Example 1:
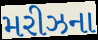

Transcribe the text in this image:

મરીઝના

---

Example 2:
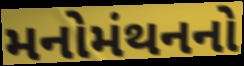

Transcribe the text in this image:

મનોમંથનનો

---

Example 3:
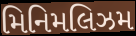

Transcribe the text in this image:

મિનિમલિઝમ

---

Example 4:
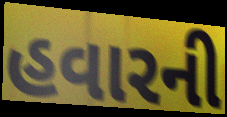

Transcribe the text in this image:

હવારની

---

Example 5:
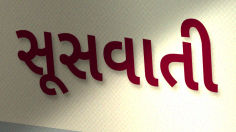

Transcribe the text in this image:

સૂસવાતી